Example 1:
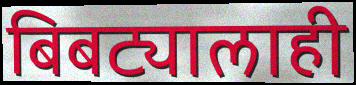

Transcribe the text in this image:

बिबट्यालाही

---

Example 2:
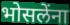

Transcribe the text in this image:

भोसलेंना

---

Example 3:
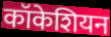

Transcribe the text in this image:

कॉकेशियन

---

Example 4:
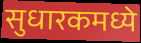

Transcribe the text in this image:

सुधारकमध्ये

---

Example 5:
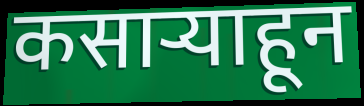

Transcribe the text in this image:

कसाऱ्याहून